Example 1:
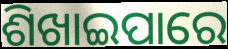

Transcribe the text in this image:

ଶିଖାଇପାରେ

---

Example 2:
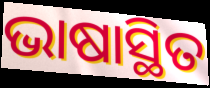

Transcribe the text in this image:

ଭାଷାସ୍ଥିତ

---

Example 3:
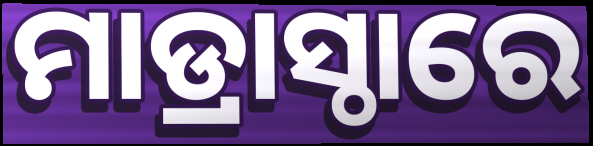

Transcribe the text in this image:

ମାଡ୍ରାସ୍ଠାରେ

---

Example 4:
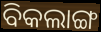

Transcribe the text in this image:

ବିକଲାଙ୍ଗ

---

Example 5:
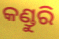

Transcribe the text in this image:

କଣ୍ଡୁରି